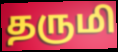
தருமி